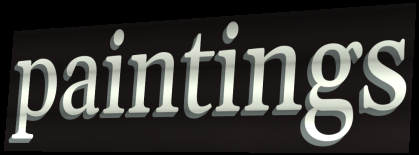
paintings